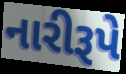
નારીરૂપે